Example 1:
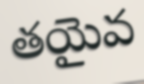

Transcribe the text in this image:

తయైవ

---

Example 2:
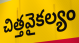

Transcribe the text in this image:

చిత్తవైకల్యం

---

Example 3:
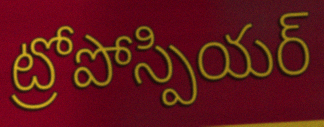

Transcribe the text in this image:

ట్రోపోస్పియర్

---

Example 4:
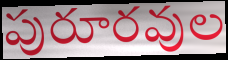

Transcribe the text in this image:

పురూరవుల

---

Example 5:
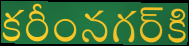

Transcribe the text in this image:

కరీంనగర్‌కి